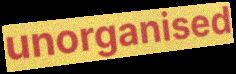
unorganised